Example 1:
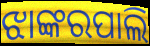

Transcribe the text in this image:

ଝାଙ୍କରପାଲି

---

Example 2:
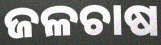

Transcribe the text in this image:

ଜଳଚାଷ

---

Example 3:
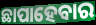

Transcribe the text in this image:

ଛାପାହେବାର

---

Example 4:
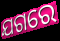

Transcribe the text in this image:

ଯଗରେ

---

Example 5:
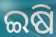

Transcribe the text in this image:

ଇଷି